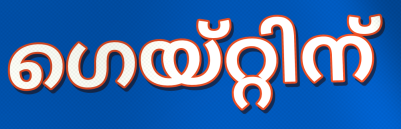
ഗെയ്റ്റിന്